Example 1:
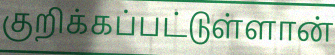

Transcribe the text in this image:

குறிக்கப்பட்டுள்ளான்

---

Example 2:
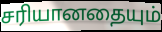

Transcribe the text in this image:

சரியானதையும்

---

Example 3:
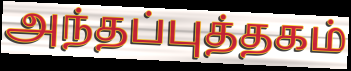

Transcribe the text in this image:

அந்தப்புத்தகம்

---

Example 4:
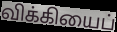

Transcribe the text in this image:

விக்கியைப்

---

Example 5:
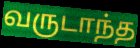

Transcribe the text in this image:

வருடாந்த